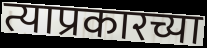
त्याप्रकारच्या